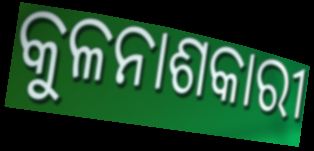
କୁଳନାଶକାରୀ